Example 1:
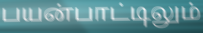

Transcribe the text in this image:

பயன்பாட்டிலும்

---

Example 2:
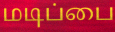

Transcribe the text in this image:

மடிப்பை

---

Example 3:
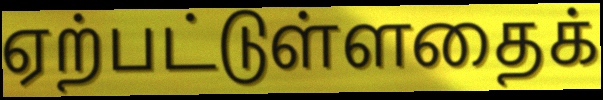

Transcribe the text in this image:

ஏற்பட்டுள்ளதைக்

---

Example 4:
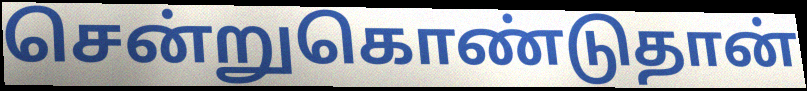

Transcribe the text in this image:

சென்றுகொண்டுதான்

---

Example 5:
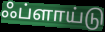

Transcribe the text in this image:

ஃப்ளாய்டு